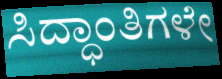
ಸಿದ್ಧಾಂತಿಗಳೇ